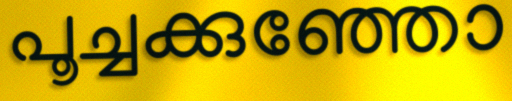
പൂച്ചക്കുഞ്ഞോ